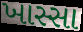
ખાસ્સા